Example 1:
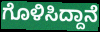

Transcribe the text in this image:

ಗೊಳಿಸಿದ್ದಾನೆ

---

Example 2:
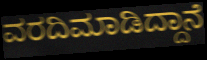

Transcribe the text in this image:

ವರದಿಮಾಡಿದ್ದಾನೆ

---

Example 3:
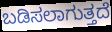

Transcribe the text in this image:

ಬಡಿಸಲಾಗುತ್ತದೆ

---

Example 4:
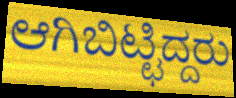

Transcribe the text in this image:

ಆಗಿಬಿಟ್ಟಿದ್ದರು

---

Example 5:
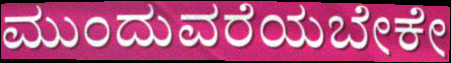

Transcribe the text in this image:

ಮುಂದುವರೆಯಬೇಕೇ